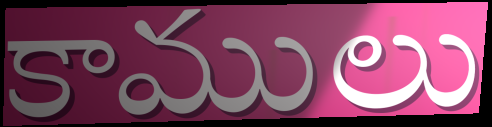
కాములు